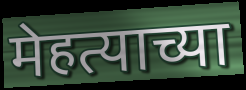
मेहत्याच्या